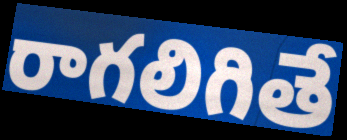
రాగలిగితే